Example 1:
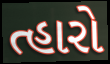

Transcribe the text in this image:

ત્હારો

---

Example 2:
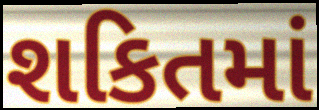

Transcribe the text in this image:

શકિતમાં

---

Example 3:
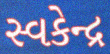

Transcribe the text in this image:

સ્વકેન્દ્ર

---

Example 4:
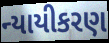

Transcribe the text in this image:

ન્યાયીકરણ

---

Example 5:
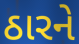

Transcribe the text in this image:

ઠારને